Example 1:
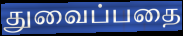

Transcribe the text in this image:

துவைப்பதை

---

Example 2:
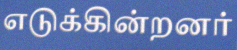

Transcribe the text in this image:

எடுக்கின்றனர்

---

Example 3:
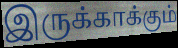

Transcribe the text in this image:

இருக்காக்கும்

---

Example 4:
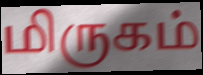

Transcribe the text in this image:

மிருகம்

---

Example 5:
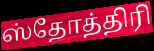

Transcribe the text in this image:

ஸ்தோத்திரி